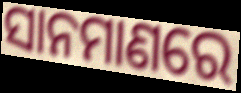
ସାନମାଣରେ